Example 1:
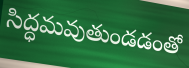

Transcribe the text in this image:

సిద్ధమవుతుండడంతో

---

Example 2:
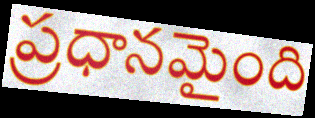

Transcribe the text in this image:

ప్రధానమైంది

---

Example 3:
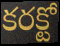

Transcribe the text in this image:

కరక్టో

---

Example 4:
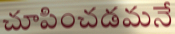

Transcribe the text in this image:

చూపించడమనే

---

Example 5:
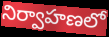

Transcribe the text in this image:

నిర్వాహణలో